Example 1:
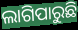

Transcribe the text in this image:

ଲାଗିପାରୁଛି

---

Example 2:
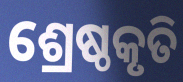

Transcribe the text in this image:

ଶ୍ରେଷ୍ଠକୃତି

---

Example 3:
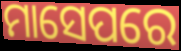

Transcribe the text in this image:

ମାସେପରେ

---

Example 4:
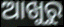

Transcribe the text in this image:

ଆଖୁରୁ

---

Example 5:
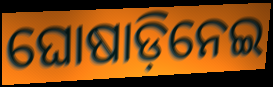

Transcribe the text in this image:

ଘୋଷାଡ଼ିନେଇ